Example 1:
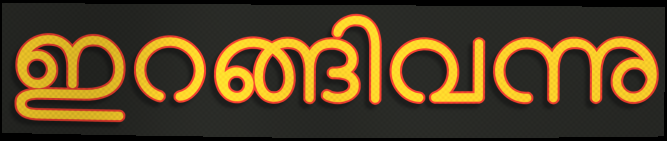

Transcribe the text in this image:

ഇറങ്ങിവന്നു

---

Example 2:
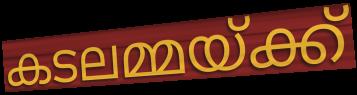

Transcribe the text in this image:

കടലമ്മയ്ക്ക്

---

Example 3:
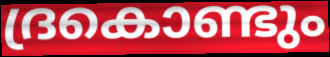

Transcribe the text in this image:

ദ്രകൊണ്ടും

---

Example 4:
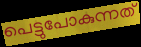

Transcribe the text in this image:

പെട്ടുപോകുന്നത്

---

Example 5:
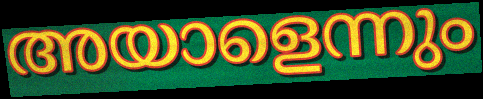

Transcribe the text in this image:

അയാളെന്നും